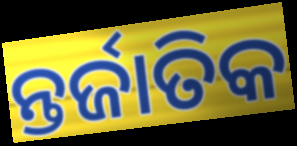
ନ୍ତର୍ଜାତିକ